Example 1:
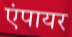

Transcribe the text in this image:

एंपायर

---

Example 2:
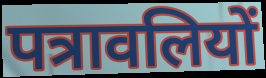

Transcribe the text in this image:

पत्रावलियों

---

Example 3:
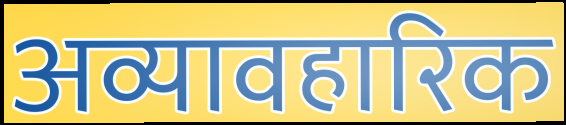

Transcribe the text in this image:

अव्यावहारिक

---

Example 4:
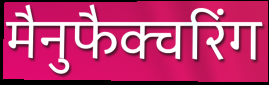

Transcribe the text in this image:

मैनुफैक्चरिंग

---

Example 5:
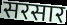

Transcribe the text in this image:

सरसार